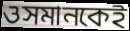
ওসমানকেই